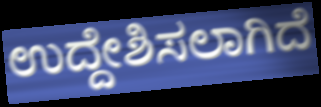
ಉದ್ದೇಶಿಸಲಾಗಿದೆ